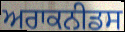
ਅਰਾਕਨੀਡਸ